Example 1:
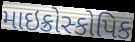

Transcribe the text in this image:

માઇક્રોસ્કોપિક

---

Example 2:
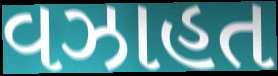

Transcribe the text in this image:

વઝાહત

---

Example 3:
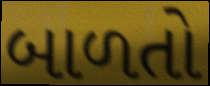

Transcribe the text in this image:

બાળતો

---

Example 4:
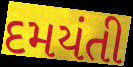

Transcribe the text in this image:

દમયંતી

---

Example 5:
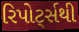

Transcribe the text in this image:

રિપોર્ટ્સથી